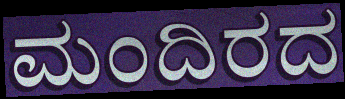
ಮಂದಿರದ